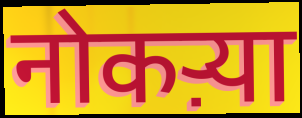
नोकऱ्‍या